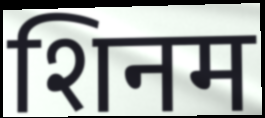
शिनम